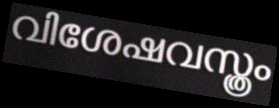
വിശേഷവസ്ത്രം